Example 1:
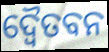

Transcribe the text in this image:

ଦ୍ୱୈତବନ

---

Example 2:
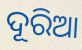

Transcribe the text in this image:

ଦୂରିଆ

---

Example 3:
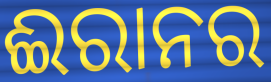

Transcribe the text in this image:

ଈରାନର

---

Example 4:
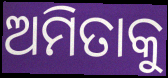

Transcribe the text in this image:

ଅମିତାକୁ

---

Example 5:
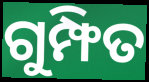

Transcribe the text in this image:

ଗୁମ୍ଫିତ